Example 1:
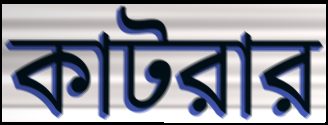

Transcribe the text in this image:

কাটরার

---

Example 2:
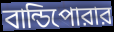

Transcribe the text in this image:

বান্ডিপোরার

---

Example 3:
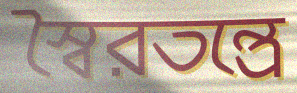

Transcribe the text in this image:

স্বৈরতন্ত্রে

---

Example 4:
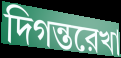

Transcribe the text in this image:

দিগন্তরেখা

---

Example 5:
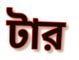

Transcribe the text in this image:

টার